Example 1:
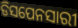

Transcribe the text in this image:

ଡିସପେନସାରୀ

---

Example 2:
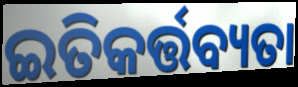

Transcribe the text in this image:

ଇତିକର୍ତ୍ତବ୍ୟତା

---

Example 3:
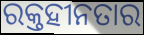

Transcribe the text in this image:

ରକ୍ତହୀନତାର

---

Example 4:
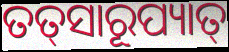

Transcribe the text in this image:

ତତ୍‌ସାରୂପ୍ୟାତ୍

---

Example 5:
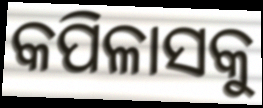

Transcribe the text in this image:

କପିଳାସକୁ